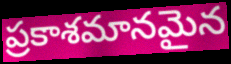
ప్రకాశమానమైన